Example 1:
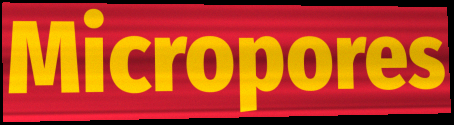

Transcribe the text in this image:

Micropores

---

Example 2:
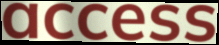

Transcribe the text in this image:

access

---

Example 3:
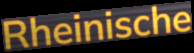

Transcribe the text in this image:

Rheinische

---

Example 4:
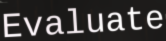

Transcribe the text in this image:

Evaluate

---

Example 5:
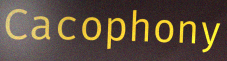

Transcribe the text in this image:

Cacophony